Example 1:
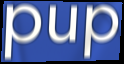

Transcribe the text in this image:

pup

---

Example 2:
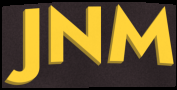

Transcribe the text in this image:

JNM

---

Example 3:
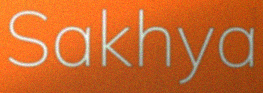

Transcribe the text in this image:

Sakhya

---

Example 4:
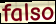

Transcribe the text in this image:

falso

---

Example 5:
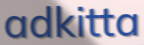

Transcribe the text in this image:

adkitta